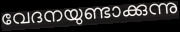
വേദനയുണ്ടാക്കുന്നു